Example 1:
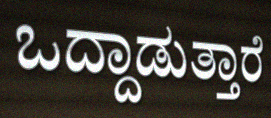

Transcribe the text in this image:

ಒದ್ದಾಡುತ್ತಾರೆ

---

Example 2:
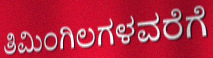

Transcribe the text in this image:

ತಿಮಿಂಗಿಲಗಳವರೆಗೆ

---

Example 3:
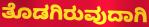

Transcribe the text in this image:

ತೊಡಗಿರುವುದಾಗಿ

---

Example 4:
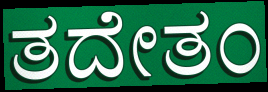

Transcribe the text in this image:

ತದೇತಂ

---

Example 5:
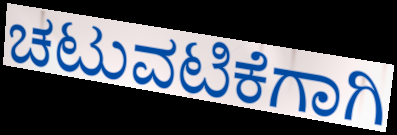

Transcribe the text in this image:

ಚಟುವಟಿಕೆಗಾಗಿ